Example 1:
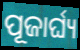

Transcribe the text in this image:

ପୂଜାର୍ଘ୍ୟ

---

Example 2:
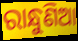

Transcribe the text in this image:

ରାନ୍ଧୁଣିଆ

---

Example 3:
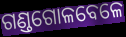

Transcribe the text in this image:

ଗଣ୍ଡଗୋଳବେଳେ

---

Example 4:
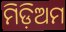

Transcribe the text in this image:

ମିଡ଼ିଅମ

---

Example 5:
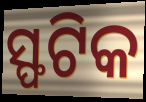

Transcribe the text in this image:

ସ୍ଫଟିକ